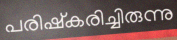
പരിഷ്കരിച്ചിരുന്നു